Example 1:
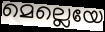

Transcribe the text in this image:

മെല്ലെയേ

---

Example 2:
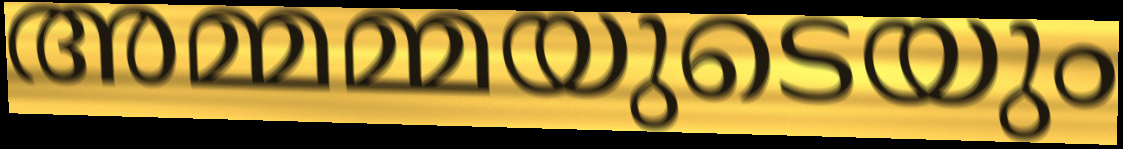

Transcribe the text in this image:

അമ്മമ്മയുടെയും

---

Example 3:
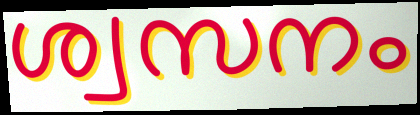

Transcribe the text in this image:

ശ്വസനം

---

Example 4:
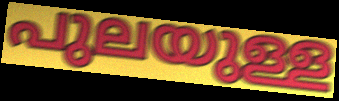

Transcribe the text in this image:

പുലയുള്ള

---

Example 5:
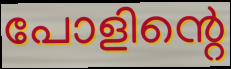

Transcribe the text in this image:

പോളിന്റെ